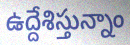
ఉద్దేశిస్తున్నాం